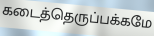
கடைத்தெருப்பக்கமே